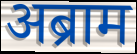
अब्राम